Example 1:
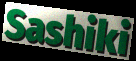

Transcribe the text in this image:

Sashiki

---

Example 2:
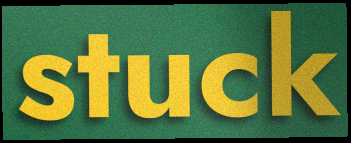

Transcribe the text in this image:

stuck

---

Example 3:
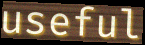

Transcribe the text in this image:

useful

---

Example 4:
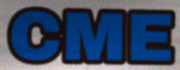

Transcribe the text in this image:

CME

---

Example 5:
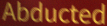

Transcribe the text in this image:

Abducted